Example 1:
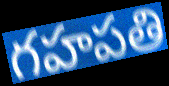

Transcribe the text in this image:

గహపతి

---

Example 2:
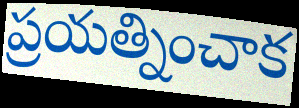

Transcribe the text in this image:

ప్రయత్నించాక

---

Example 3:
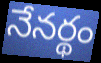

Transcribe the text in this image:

నేనర్థం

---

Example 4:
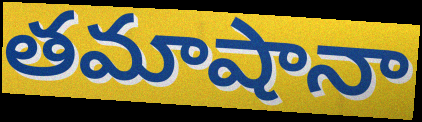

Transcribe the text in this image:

తమాషానా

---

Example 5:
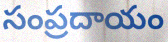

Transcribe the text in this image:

సంప్రదాయం